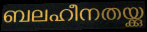
ബലഹീനതയ്ക്കു